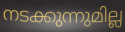
നടക്കുന്നുമില്ല